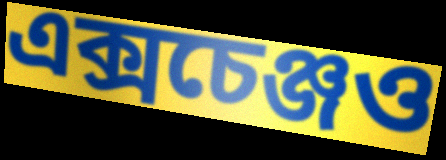
এক্সচেঞ্জও